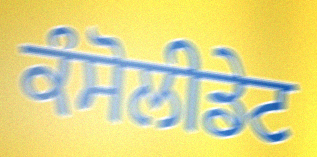
ਕੰਸੋਲੀਡੇਟ